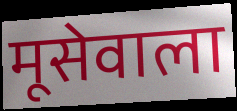
मूसेवाला